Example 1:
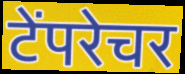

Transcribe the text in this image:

टेंपरेचर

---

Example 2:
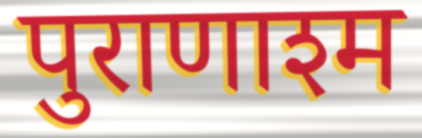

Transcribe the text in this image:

पुराणाश्म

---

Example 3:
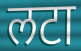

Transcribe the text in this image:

लटा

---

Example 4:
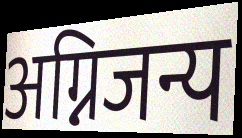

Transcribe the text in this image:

अग्निजन्य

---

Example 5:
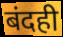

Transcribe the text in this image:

बंदही